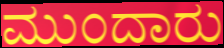
ಮುಂದಾರು